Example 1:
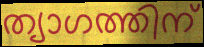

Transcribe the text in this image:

ത്യാഗത്തിന്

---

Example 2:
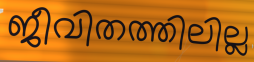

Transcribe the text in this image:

ജീവിതത്തിലില്ല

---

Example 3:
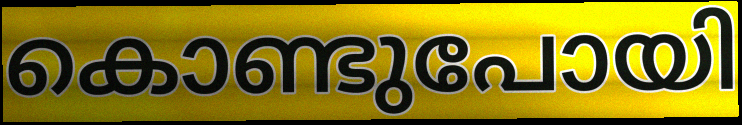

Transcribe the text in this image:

കൊണ്ടുപോയി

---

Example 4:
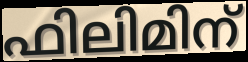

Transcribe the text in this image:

ഫിലിമിന്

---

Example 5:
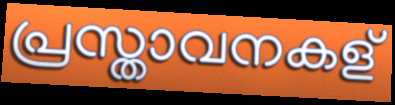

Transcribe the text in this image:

പ്രസ്താവനകള്